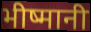
भीष्मानी